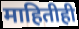
माहितीही